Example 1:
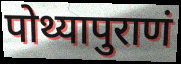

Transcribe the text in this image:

पोथ्यापुराणं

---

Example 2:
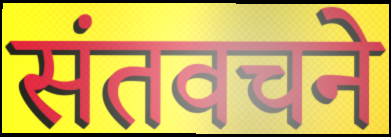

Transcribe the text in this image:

संतवचने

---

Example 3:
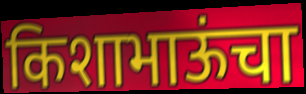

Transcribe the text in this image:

किशाभाऊंचा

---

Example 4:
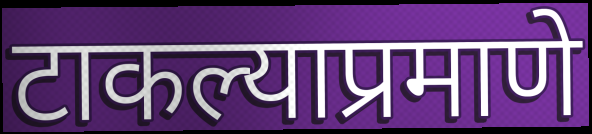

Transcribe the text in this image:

टाकल्याप्रमाणे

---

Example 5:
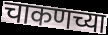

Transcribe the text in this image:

चाकणच्या